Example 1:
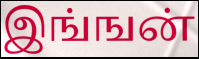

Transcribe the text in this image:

இங்ஙன்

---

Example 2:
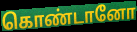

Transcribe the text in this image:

கொண்டானோ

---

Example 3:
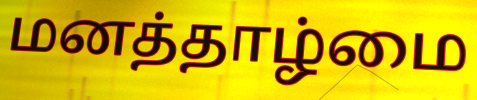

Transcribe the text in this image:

மனத்தாழ்மை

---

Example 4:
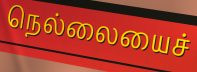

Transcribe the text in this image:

நெல்லையைச்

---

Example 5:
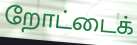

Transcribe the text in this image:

றோட்டைக்